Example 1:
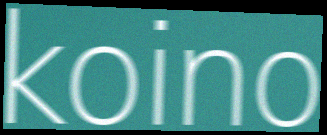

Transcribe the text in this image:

koino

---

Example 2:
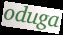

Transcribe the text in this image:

oduga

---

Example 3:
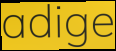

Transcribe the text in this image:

adige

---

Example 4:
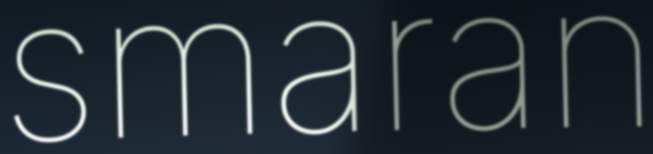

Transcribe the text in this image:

smaran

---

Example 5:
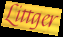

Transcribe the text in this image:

Littger